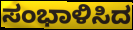
ಸಂಭಾಳಿಸಿದ